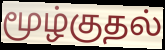
மூழ்குதல்